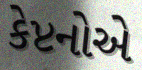
કેપ્ટનોએ